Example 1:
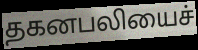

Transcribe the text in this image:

தகனபலியைச்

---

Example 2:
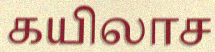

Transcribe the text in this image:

கயிலாச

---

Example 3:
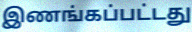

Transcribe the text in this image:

இணங்கப்பட்டது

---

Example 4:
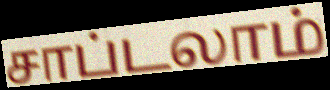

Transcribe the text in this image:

சாப்டலாம்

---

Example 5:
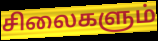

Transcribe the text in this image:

சிலைகளும்